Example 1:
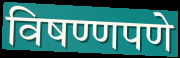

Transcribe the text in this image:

विषण्णपणे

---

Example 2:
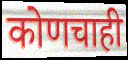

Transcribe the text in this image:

कोणचाही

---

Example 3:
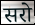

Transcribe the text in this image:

सरो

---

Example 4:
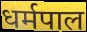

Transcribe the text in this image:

धर्मपाल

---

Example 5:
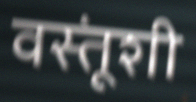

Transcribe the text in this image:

वस्तूंशी